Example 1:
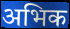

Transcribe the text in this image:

अभिक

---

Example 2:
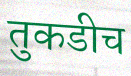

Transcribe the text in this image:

तुकडीच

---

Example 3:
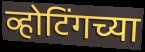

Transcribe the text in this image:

व्होटिंगच्या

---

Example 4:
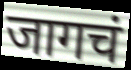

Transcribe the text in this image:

जागचं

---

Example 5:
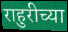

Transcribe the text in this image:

राहुरीच्या